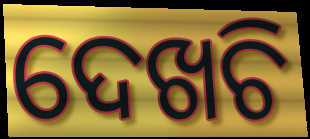
ଦେଖଚି